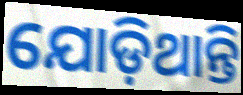
ଯୋଡ଼ିଥାନ୍ତି